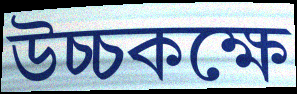
উচ্চকক্ষে